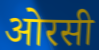
ओरसी